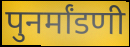
पुनर्मांडणी